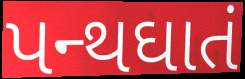
પન્થઘાતં